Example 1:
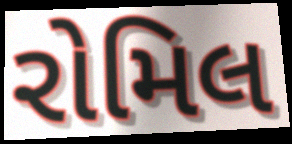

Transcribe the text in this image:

રોમિલ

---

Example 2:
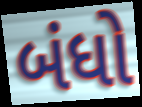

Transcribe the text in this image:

બંધો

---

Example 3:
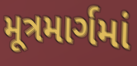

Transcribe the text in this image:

મૂત્રમાર્ગમાં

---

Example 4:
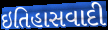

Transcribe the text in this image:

ઇતિહાસવાદી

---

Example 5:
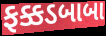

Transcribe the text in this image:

ફક્કડબાબા